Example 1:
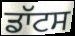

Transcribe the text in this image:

ਡਾੱਟਸ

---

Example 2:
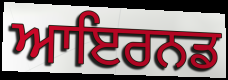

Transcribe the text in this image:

ਆਇਰਨਡ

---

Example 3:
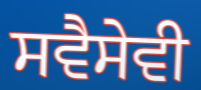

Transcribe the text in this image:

ਸਵੈਸੇਵੀ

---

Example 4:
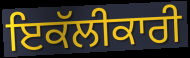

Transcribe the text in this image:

ਇਕੱਲੀਕਾਰੀ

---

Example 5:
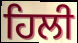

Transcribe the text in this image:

ਹਿਲੀ